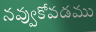
నవ్వుకోవడము